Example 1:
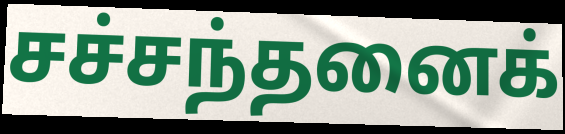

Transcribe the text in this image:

சச்சந்தனைக்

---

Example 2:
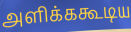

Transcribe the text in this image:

அளிக்ககூடிய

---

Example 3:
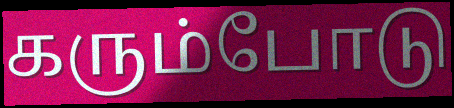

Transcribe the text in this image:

கரும்போடு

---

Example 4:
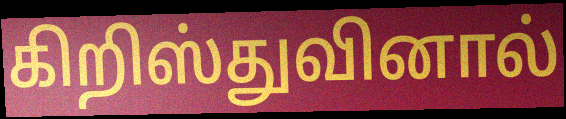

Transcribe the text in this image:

கிறிஸ்துவினால்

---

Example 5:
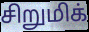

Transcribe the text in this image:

சிறுமிக்